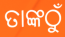
ତାଙ୍କଠୁଁ